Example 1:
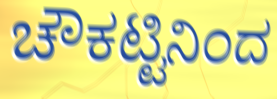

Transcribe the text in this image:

ಚೌಕಟ್ಟಿನಿಂದ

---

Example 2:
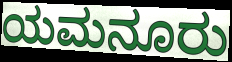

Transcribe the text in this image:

ಯಮನೂರು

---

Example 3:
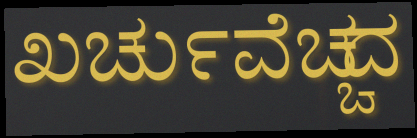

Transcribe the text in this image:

ಖರ್ಚುವೆಚ್ಚದ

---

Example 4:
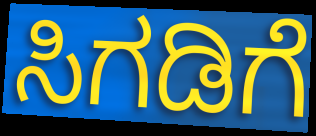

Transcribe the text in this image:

ಸಿಗಡಿಗೆ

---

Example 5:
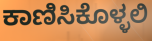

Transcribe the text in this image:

ಕಾಣಿಸಿಕೊಳ್ಳಲಿ